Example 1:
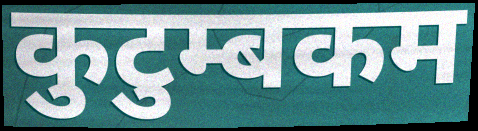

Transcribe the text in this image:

कुटुम्बकम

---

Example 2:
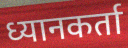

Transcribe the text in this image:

ध्यानकर्ता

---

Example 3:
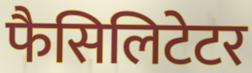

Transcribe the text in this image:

फैसिलिटेटर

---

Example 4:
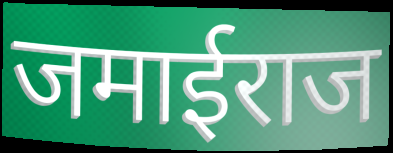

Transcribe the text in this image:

जमाईराज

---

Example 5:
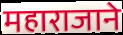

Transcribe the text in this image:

महाराजाने